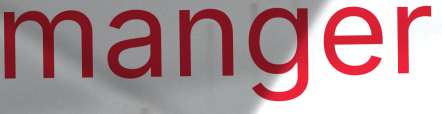
manger